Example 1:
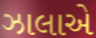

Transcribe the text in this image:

ઝાલાએ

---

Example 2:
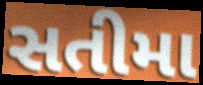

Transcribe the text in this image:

સતીમા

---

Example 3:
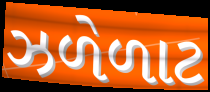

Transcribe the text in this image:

ઝળેળાટ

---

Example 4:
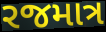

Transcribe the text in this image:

રજમાત્ર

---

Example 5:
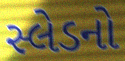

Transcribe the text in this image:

સ્લેડનો